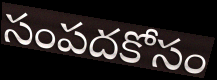
సంపదకోసం